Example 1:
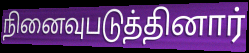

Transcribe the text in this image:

நினைவுபடுத்தினார்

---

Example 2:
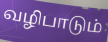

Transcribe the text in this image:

வழிபாடும்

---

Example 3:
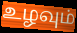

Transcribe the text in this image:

உழவும்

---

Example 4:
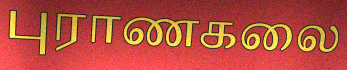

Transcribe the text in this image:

புராணகலை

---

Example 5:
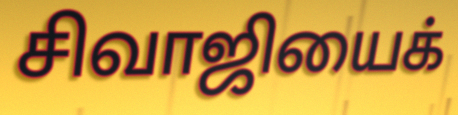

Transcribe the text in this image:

சிவாஜியைக்